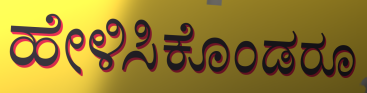
ಹೇಳಿಸಿಕೊಂಡರೂ